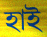
হাই